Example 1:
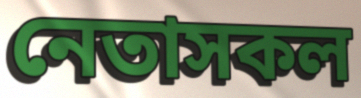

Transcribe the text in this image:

নেতাসকল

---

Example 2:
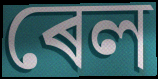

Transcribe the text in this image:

ৰেল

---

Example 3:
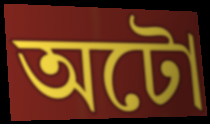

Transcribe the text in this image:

অটো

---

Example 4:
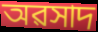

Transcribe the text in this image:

অৱসাদ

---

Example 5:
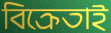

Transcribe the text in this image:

বিক্ৰেতাই